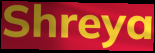
Shreya